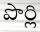
పొర్లి